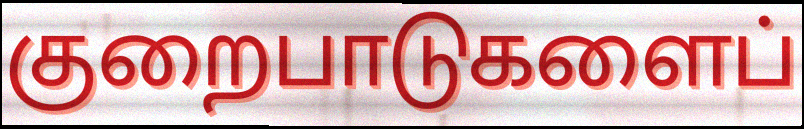
குறைபாடுகளைப்